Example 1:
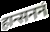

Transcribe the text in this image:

हान्सननं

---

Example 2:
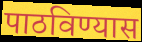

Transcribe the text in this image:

पाठविण्यास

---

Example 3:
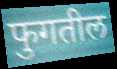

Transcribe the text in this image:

फुगतील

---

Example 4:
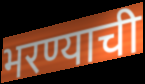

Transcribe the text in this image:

भरण्याची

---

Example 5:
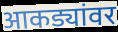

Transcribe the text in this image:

आकड्यांवर